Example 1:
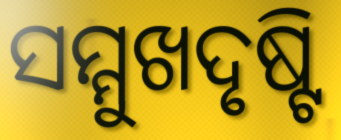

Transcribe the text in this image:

ସମ୍ମୁଖଦୃଷ୍ଟି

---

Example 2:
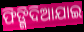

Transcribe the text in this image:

ଫିଙ୍ଗିଦିଆଯାଇ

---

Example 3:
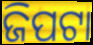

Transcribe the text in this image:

ଜିପଟା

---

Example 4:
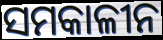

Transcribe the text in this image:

ସମକାଳୀନ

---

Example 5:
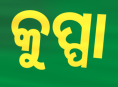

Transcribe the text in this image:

କୁପ୍ପା